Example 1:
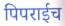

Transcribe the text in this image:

पिपराईच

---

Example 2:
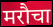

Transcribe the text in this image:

मरौचा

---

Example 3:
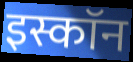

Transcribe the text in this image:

इस्‍कॉन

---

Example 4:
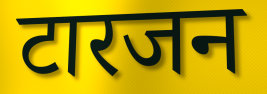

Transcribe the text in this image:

टारजन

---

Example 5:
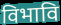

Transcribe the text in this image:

विभावि